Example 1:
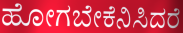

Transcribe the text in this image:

ಹೋಗಬೇಕೆನಿಸಿದರೆ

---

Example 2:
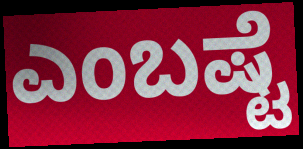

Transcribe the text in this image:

ಎಂಬಷ್ಟೆ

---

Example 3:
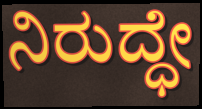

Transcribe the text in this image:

ನಿರುದ್ಧೇ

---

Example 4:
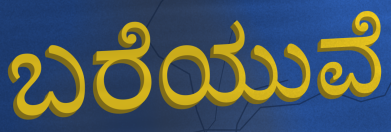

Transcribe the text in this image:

ಬರೆಯುವೆ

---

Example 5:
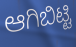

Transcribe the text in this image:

ಆಗಿಬಿಟ್ಟಿ